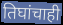
तिघांचाही